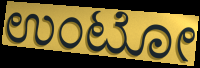
ಉಂಟೋ